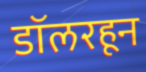
डॉलरहून